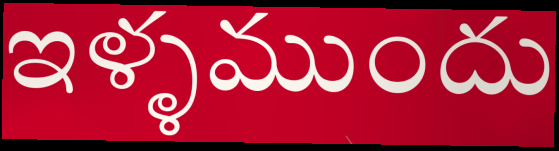
ఇళ్ళముందు